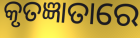
କୃତଜ୍ଞାତାରେ